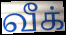
வீக்